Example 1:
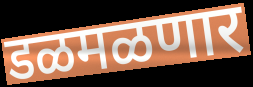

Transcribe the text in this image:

डळमळणार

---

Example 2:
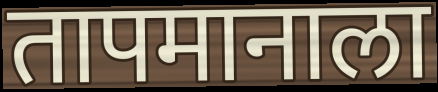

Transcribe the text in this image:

तापमानाला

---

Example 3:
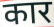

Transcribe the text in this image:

कार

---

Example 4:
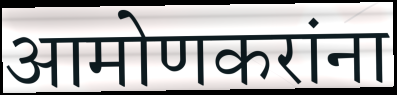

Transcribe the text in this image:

आमोणकरांना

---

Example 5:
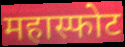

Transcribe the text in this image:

महास्फोट